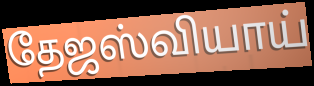
தேஜஸ்வியாய்